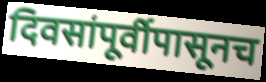
दिवसांपूर्वीपासूनच